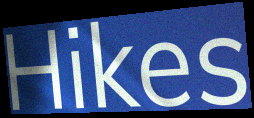
Hikes